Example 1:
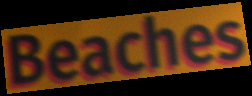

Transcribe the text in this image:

Beaches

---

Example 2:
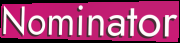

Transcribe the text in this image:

Nominator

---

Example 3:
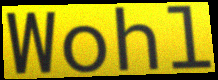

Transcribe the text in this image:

Wohl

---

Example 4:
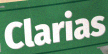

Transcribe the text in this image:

Clarias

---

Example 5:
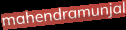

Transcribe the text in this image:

mahendramunjal